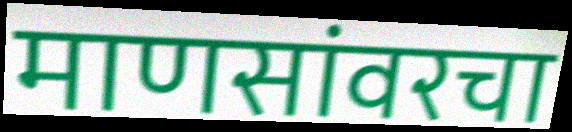
माणसांवरचा